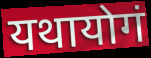
यथायोगं